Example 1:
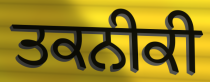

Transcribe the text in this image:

ਤਕਨੀਕੀ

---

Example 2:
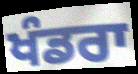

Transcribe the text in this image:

ਖੰਡਰਾ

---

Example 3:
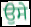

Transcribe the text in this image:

ਉਸੇ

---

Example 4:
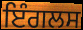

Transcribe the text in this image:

ਇੰਗਲਸ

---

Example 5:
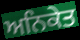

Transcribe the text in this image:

ਅਨਿਕੇਤ